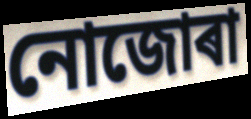
নোজোৰা